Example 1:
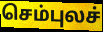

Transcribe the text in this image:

செம்புலச்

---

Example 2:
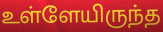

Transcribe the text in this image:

உள்ளேயிருந்த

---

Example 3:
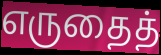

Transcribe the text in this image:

எருதைத்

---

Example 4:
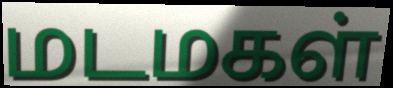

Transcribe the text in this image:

மடமகள்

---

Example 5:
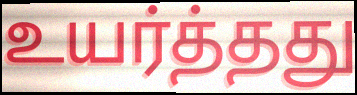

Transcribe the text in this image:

உயர்த்தது